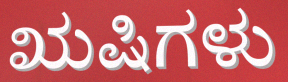
ಋಷಿಗಳು